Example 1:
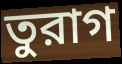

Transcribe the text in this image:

তুরাগ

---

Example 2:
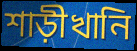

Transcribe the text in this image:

শাড়ীখানি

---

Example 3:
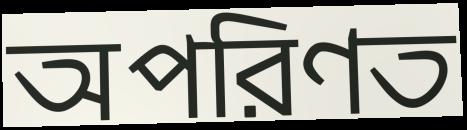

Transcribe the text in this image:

অপরিণত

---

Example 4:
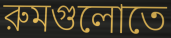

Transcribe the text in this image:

রুমগুলোতে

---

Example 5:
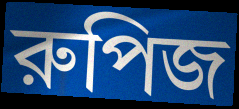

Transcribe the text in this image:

রুপিজ